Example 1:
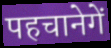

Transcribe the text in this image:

पहचानेगें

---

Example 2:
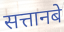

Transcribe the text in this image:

सत्तानबे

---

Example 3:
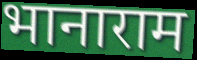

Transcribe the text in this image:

भानाराम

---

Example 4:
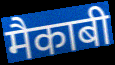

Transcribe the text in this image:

मैकाबी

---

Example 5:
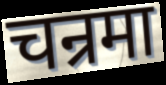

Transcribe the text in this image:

चन्रमा